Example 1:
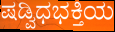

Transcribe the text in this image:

ಷಡ್ವಿಧಭಕ್ತಿಯ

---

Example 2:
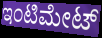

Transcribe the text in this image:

ಇಂಟಿಮೇಟ್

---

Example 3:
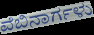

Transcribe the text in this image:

ವೆಬಿನಾರ್ಗಳು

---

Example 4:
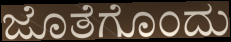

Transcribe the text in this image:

ಜೊತೆಗೊಂದು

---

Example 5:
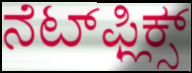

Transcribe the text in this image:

ನೆಟ್‌ಫ್ಲಿಕ್ಸ್